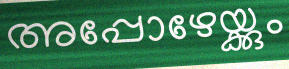
അപ്പോഴേയ്ക്കും